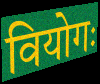
वियोगः